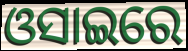
ଓସାଇରେ